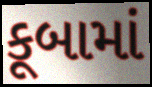
કૂબામાં